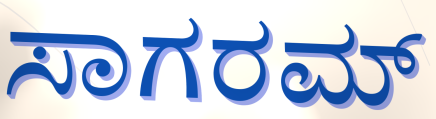
ಸಾಗರಮ್